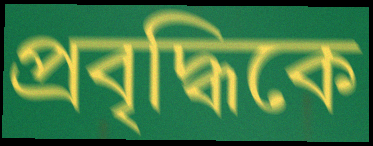
প্রবৃদ্ধিকে